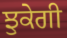
ਝੁਕੇਗੀ